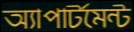
অ্যাপার্টমেন্ট